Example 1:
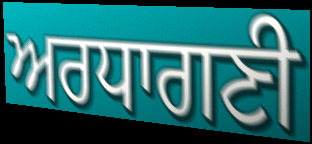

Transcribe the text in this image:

ਅਰਧਾਗਣੀ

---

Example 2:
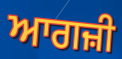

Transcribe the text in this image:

ਆਗਜ਼ੀ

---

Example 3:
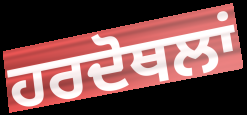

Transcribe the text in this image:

ਹਰਦੋਥਲਾਂ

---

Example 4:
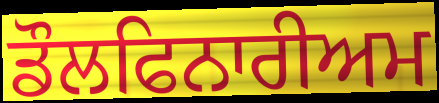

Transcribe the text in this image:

ਡੌਲਫਿਨਾਰੀਅਮ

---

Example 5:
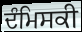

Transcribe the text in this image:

ਦੰਮਿਸਕੀ